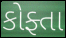
કોફ્તા